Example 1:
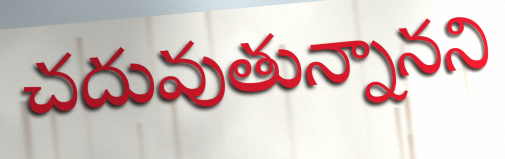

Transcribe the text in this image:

చదువుతున్నానని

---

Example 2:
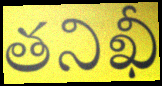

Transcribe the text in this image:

తనిఖీ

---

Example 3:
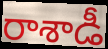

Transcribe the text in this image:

రాశాడీ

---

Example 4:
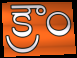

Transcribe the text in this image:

క్రౌం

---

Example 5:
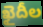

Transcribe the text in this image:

ఖైదీల